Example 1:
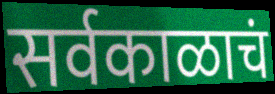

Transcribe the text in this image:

सर्वकाळाचं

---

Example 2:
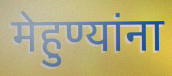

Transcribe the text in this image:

मेहुण्यांना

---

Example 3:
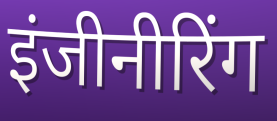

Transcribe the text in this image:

इंजीनीरिंग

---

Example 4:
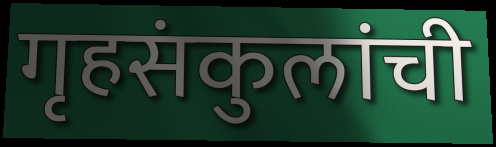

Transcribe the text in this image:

गृहसंकुलांची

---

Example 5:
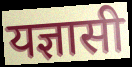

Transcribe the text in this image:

यज्ञासी